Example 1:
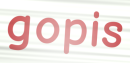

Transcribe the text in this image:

gopis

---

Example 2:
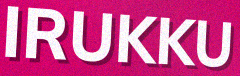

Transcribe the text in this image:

IRUKKU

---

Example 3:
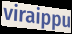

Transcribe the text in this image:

viraippu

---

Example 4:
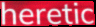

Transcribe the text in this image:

heretic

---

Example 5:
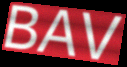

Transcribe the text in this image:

BAV